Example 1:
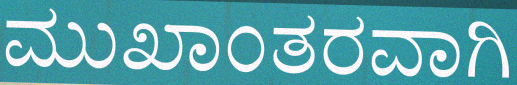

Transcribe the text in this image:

ಮುಖಾಂತರವಾಗಿ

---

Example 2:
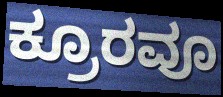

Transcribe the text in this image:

ಕ್ರೂರವೂ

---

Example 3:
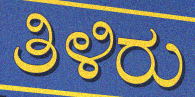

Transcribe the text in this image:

ತಿಳಿರು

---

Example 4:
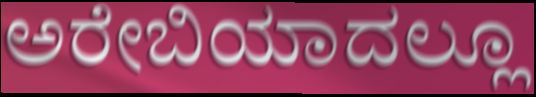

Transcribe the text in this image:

ಅರೇಬಿಯಾದಲ್ಲೂ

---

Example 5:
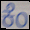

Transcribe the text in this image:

ಕೆಂ